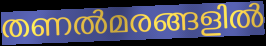
തണൽമരങ്ങളിൽ